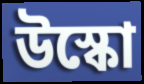
উস্কো